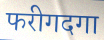
फरीगदगा